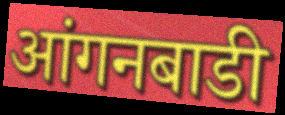
आंगनबाडी